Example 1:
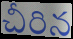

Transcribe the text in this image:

చీరిన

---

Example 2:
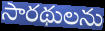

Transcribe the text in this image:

సారథులను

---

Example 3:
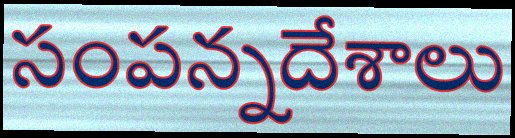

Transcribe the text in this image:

సంపన్నదేశాలు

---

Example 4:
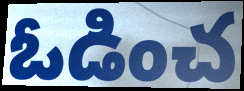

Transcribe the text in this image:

ఓడించ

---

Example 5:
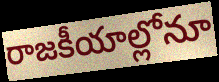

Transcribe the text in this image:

రాజకీయాల్లోనూ